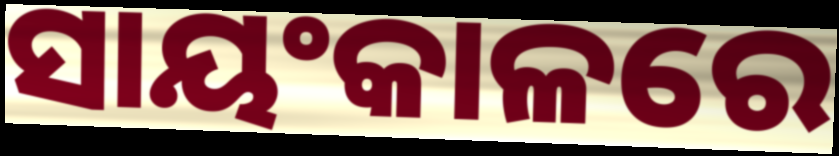
ସାୟଂକାଳରେ